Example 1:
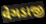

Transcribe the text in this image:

વેગડાજી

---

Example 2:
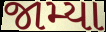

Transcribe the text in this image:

જામ્યા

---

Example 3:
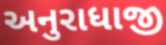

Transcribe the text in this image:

અનુરાધાજી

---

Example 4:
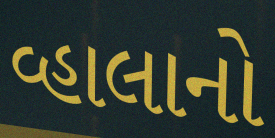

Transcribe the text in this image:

વ્હાલાનો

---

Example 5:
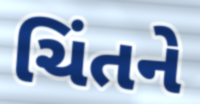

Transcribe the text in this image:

ચિંતને